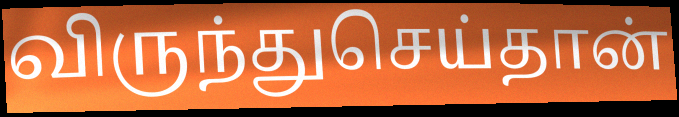
விருந்துசெய்தான்